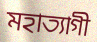
মহাত্যাগী